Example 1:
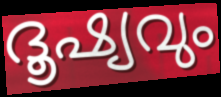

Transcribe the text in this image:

ദൂഷ്യവും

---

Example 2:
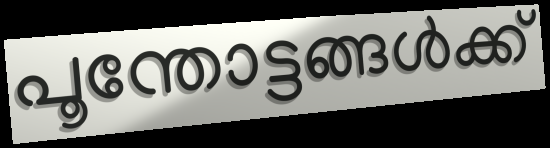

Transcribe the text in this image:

പൂന്തോട്ടങ്ങൾക്ക്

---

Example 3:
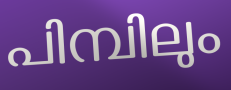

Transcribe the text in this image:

പിമ്പിലും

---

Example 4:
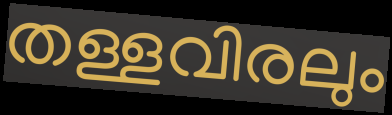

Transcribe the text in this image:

തള്ളവിരലും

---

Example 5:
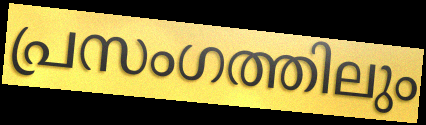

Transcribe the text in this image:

പ്രസംഗത്തിലും